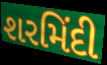
શરમિંદી